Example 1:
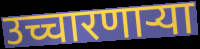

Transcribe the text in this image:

उच्चारणाऱ्या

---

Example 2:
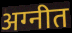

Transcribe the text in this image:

अग्नीत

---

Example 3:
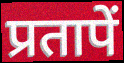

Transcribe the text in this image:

प्रतापें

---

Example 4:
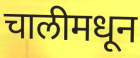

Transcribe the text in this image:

चालीमधून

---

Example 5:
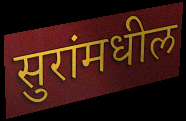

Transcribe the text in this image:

सुरांमधील